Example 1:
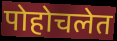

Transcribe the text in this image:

पोहोचलेत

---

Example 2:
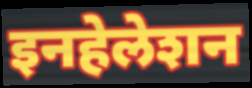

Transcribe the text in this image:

इनहेलेशन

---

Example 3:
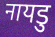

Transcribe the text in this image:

नायडु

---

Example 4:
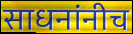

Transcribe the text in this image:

साधनांनीच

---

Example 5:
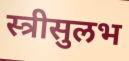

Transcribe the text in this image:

स्त्रीसुलभ